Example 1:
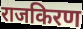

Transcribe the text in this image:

राजकिरण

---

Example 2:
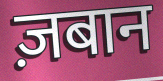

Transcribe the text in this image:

ज़बान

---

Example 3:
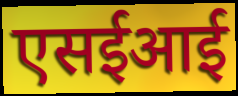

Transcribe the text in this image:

एसईआई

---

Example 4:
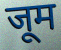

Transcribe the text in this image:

जूम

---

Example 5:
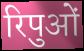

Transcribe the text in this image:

रिपुओं